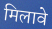
मिलावे